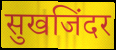
सुखजिंदर